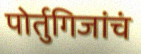
पोर्तुगिजांचं